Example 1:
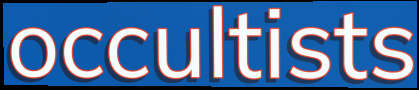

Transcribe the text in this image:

occultists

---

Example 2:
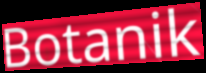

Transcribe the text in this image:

Botanik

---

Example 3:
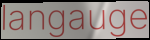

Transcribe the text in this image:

langauge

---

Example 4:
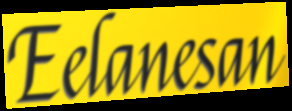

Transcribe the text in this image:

Eelanesan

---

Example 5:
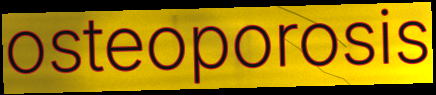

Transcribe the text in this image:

osteoporosis